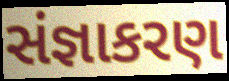
સંજ્ઞાકરણ